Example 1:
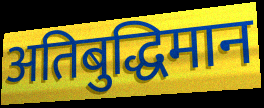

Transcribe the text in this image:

अतिबुद्धिमान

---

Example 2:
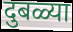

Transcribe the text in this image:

दुबळ्या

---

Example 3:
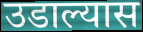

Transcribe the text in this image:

उडाल्यास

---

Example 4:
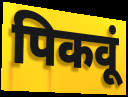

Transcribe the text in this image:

पिकवूं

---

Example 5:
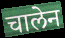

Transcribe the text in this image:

चालेन